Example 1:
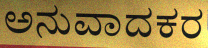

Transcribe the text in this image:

ಅನುವಾದಕರ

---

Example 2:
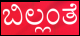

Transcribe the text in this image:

ಬಿಲ್ಲಂತೆ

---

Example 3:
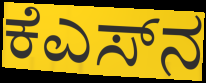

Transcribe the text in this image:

ಕೆಎಸ್‌ನ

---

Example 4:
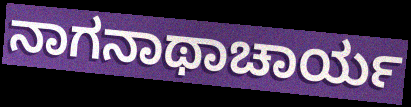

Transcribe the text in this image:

ನಾಗನಾಥಾಚಾರ್ಯ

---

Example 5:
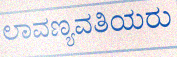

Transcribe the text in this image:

ಲಾವಣ್ಯವತಿಯರು